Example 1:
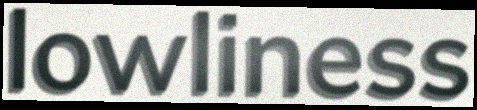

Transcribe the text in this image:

lowliness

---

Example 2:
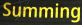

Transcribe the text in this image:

Summing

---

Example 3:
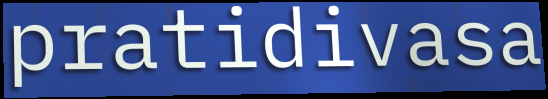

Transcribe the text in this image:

pratidivasa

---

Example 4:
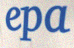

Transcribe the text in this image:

epa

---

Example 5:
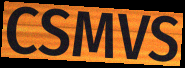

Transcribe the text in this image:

CSMVS